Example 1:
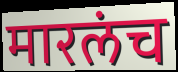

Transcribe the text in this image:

मारलंच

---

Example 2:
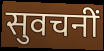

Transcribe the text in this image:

सुवचनीं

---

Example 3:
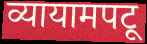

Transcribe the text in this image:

व्यायामपटू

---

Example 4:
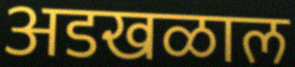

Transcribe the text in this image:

अडखळाल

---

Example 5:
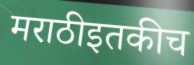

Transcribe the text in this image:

मराठीइतकीच